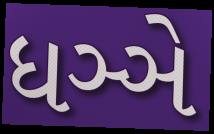
ધઞ્ઞે